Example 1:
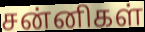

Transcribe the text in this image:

சன்னிகள்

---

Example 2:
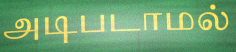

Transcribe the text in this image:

அடிபடாமல்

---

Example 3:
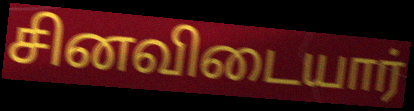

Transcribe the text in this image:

சினவிடையார்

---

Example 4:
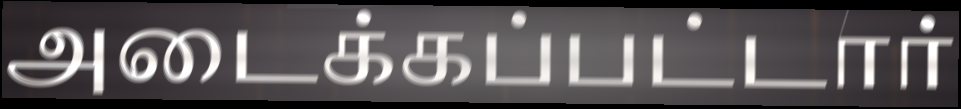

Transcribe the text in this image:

அடைக்கப்பட்டார்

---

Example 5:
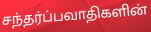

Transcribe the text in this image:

சந்தர்ப்பவாதிகளின்